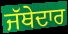
ਜੱਥੇਦਾਰ